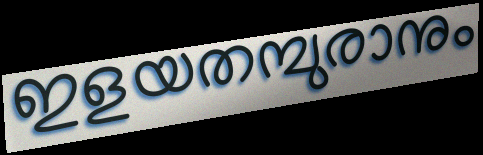
ഇളയതമ്പുരാനും